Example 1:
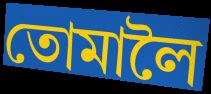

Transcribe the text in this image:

তোমালৈ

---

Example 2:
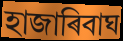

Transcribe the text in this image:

হাজাৰিবাঘ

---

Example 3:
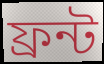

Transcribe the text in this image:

ফ্ৰন্ট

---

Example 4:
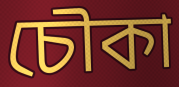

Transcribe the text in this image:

চৌকা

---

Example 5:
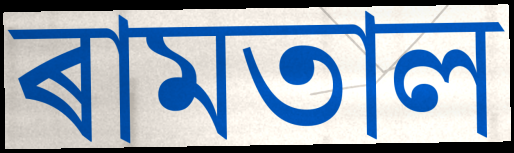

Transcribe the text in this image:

ৰামতাল